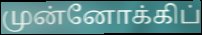
முன்னோக்கிப்